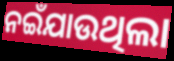
ନଇଁଯାଉଥିଲା